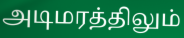
அடிமரத்திலும்